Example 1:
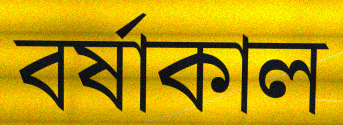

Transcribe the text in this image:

বর্ষাকাল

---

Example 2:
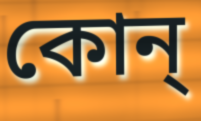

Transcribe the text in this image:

কোন্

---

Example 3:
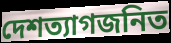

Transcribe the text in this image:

দেশত্যাগজনিত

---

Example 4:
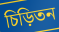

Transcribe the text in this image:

চিড়িতন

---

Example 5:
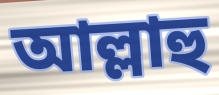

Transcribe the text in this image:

আল্লাহু